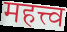
महत्त्व